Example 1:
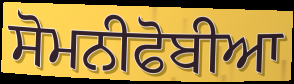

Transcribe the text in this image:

ਸੋਮਨੀਫੋਬੀਆ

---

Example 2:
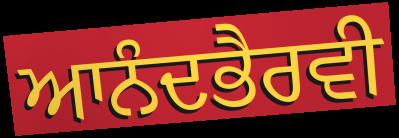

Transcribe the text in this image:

ਆਨੰਦਭੈਰਵੀ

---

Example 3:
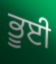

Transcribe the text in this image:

ਭੂਈ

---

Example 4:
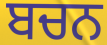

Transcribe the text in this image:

ਬਚਨ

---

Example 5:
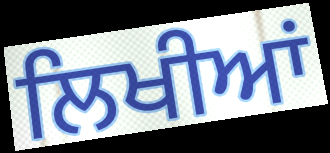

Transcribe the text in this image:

ਲਿਖੀਆਂ